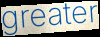
greater